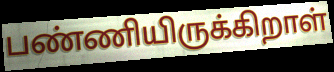
பண்ணியிருக்கிறாள்